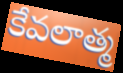
కేవలాత్మ